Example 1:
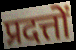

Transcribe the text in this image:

प्रदत्तों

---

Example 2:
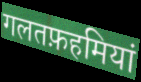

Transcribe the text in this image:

गलतफ़हमियां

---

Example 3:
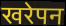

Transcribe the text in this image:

खरेपन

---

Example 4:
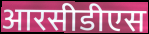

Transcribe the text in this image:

आरसीडीएस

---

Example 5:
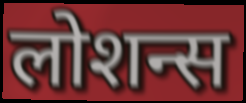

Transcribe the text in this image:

लोशन्स